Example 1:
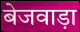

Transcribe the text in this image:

बेजवाड़ा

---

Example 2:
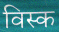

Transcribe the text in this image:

विस्क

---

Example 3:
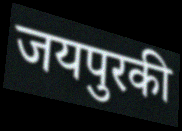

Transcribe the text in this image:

जयपुरकी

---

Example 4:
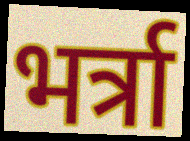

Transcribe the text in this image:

भर्त्रा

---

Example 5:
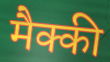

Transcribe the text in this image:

मैक्की